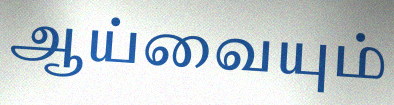
ஆய்வையும்